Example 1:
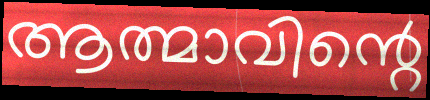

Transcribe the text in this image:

ആത്മാവിന്റെ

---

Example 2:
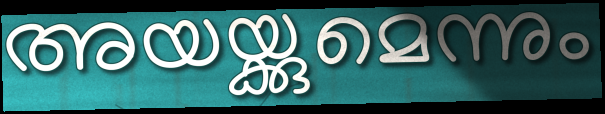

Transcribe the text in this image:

അയയ്ക്കുമെന്നും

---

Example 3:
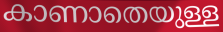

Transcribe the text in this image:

കാണാതെയുള്ള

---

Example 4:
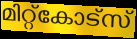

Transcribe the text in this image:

മിറ്റ്കോട്സ്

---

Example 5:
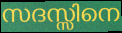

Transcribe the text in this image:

സദസ്സിനെ